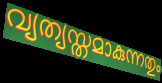
വ്യത്യസ്തമാകുന്നതും